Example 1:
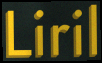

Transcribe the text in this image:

Liril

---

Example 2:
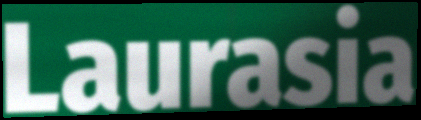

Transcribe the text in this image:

Laurasia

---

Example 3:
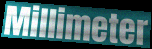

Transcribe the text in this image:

Millimeter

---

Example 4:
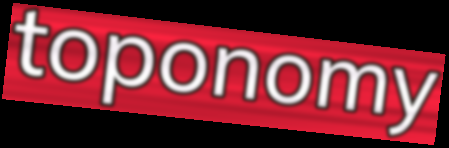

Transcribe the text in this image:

toponomy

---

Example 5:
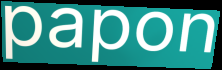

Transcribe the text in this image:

papon